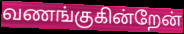
வணங்குகின்றேன்